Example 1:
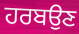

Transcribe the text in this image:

ਹਰਬਉਣ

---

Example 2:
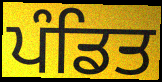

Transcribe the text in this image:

ਪੰਡਿਤ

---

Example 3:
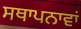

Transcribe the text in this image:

ਸਥਾਪਨਾਵਾਂ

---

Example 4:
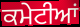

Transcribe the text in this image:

ਕਮੇਟੀਆਂ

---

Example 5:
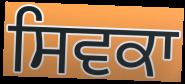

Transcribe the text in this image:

ਸਿਵਕਾ